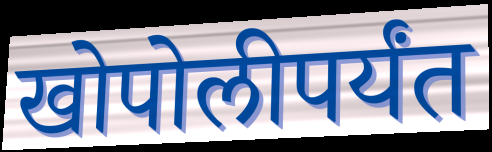
खोपोलीपर्यंत